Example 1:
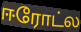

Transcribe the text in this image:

ஈரோட்ல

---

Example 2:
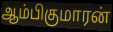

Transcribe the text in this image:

ஆம்பிகுமாரன்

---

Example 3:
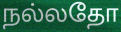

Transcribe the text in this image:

நல்லதோ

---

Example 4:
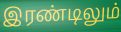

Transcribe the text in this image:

இரண்டிலும்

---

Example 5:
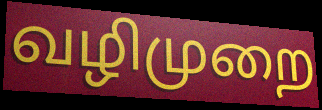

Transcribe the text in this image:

வழிமுறை